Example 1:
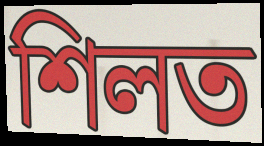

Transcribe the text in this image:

শিলত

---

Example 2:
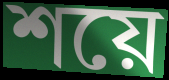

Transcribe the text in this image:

শয়ে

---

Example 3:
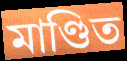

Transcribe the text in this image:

মাণ্ডিত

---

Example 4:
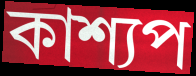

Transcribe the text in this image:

কাশ্যপ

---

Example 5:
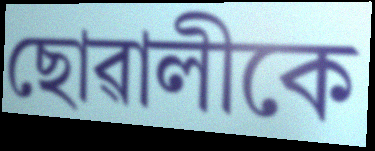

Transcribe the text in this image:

ছোৱালীকে